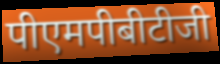
पीएमपीबीटीजी